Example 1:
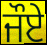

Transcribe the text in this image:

ਜੌਏ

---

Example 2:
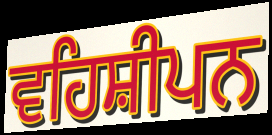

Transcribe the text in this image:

ਵਹਿਸ਼ੀਪਨ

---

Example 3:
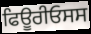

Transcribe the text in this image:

ਫਿਊਰੀਓਸਸ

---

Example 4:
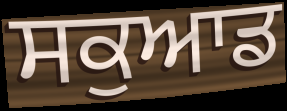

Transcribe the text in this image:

ਸਕੁਆਡ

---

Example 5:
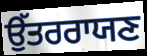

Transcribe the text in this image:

ਉੱਤਰਰਾਯਣ